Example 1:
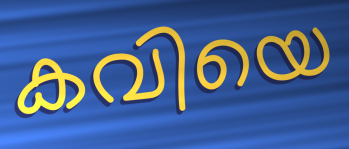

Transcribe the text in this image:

കവിയെ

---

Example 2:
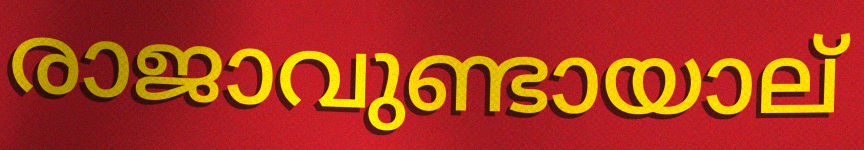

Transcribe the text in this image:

രാജാവുണ്ടായാല്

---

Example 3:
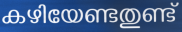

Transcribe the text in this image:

കഴിയേണ്ടതുണ്ട്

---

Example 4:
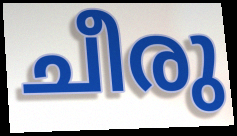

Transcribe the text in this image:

ചീരു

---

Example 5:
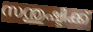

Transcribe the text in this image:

സന്തുഷ്ടിക്ക്